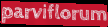
parviflorum